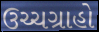
ઉચ્ચગ્રાહો